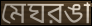
মেঘরঙা